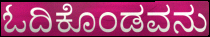
ಓದಿಕೊಂಡವನು